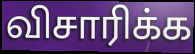
விசாரிக்க